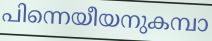
പിന്നെയീയനുകമ്പാ